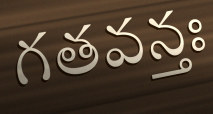
గతవన్తః